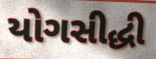
યોગસીદ્ધી